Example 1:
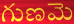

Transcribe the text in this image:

గుణమె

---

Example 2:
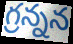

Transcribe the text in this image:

గ్రన్నన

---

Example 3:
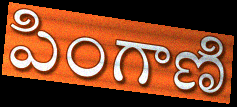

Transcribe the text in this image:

పింగాణి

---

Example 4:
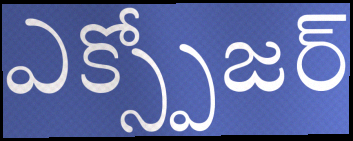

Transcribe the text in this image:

ఎక్స్పోజర్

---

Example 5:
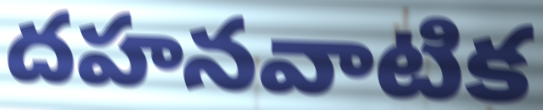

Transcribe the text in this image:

దహనవాటిక